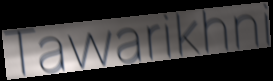
Tawarikhni